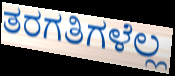
ತರಗತಿಗಳೆಲ್ಲ